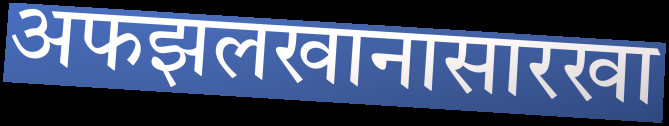
अफझलखानासारखा